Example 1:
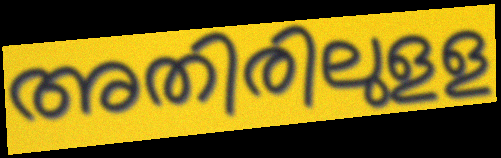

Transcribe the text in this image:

അതിരിലുളള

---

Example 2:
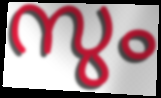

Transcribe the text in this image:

സും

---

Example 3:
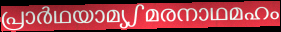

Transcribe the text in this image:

പ്രാർഥയാമ്യഽമരനാഥമഹം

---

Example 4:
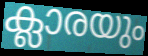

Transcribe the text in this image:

ക്ലാരയും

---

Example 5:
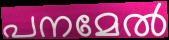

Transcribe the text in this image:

പനമേൽ